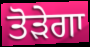
ਤੋੜੇਗਾ